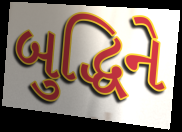
બુદ્ધિને